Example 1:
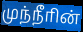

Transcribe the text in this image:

முந்நீரின்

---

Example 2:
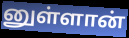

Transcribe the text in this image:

னுள்ளான்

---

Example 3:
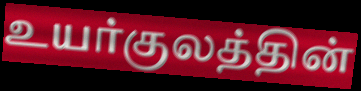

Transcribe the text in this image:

உயர்குலத்தின்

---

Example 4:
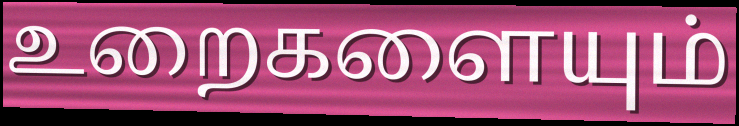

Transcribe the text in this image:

உறைகளையும்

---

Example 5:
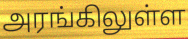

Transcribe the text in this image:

அரங்கிலுள்ள